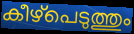
കീഴ്പെടുത്തും